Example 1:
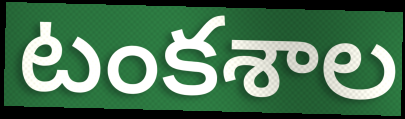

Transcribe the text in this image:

టంకశాల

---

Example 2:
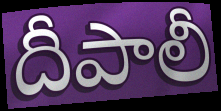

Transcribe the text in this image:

దీపాలీ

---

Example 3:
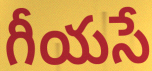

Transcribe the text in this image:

గీయసే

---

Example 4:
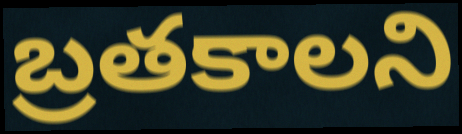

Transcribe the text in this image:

బ్రతకాలని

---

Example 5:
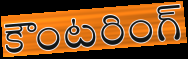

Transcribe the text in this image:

కౌంటరింగ్